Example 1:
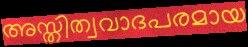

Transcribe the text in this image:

അസ്തിത്വവാദപരമായ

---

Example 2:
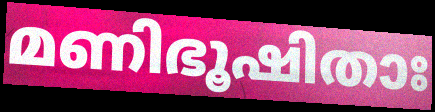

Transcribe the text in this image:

മണിഭൂഷിതാഃ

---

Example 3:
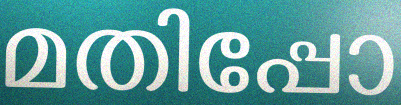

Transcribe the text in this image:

മതിപ്പോ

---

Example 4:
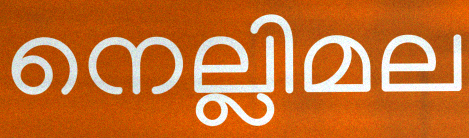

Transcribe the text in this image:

നെല്ലിമല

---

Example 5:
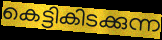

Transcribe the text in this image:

കെട്ടികിടക്കുന്ന